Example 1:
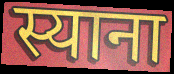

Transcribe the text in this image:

स्याना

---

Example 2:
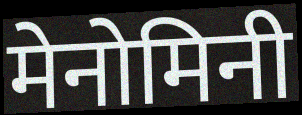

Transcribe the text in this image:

मेनोमिनी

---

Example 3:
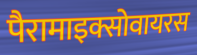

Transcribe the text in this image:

पैरामाइक्सोवायरस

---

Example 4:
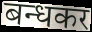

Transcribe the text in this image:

बन्धकर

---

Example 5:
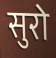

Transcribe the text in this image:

सुरो